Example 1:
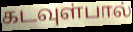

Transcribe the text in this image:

கடவுள்பால்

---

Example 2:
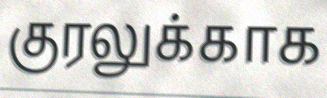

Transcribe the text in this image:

குரலுக்காக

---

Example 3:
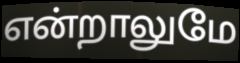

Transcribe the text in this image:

என்றாலுமே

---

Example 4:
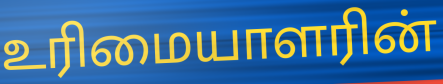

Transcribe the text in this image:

உரிமையாளரின்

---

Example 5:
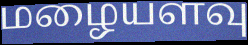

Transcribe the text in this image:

மழையளவு